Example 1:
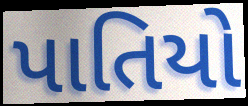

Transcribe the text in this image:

પાતિયો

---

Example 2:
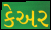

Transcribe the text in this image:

કેઅર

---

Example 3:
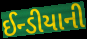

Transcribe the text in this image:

ઈન્ડીયાની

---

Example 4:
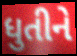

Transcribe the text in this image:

ધુતીને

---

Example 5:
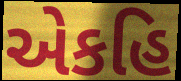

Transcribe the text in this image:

એકહિ